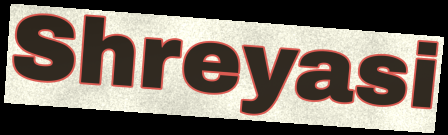
Shreyasi